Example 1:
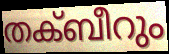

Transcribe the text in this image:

തക്ബീറും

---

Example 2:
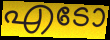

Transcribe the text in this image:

എടോ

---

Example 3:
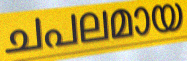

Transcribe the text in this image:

ചപലമായ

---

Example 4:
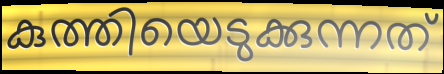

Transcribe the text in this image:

കുത്തിയെടുക്കുന്നത്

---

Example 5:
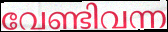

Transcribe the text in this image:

വേണ്ടിവന്ന